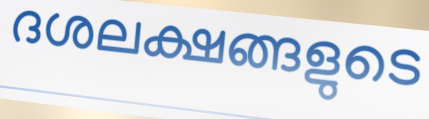
ദശലക്ഷങ്ങളുടെ